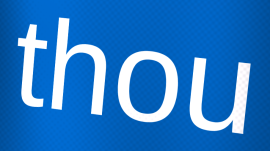
thou